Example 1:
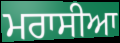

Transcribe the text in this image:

ਮਰਾਸੀਆ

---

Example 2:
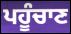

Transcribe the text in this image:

ਪਹੂੰਚਾਣ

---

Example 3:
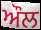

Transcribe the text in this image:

ਔਲ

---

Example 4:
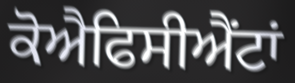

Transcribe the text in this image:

ਕੋਐਫਿਸੀਐਂਟਾਂ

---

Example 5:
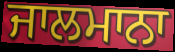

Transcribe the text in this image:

ਜਾਲਮਾਨਾ